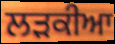
ਲੜਕੀਆ